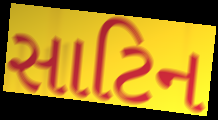
સાટિન